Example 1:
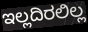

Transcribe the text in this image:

ಇಲ್ಲದಿರಲಿಲ್ಲ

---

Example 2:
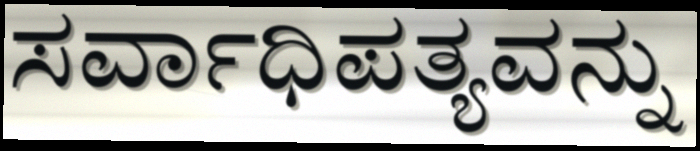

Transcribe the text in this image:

ಸರ್ವಾಧಿಪತ್ಯವನ್ನು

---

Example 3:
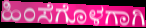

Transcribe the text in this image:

ಹಿಂಸೆಗೊಳಗಾಗಿ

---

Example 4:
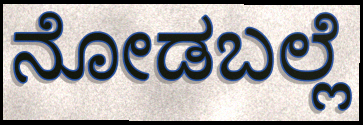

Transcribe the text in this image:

ನೋಡಬಲ್ಲೆ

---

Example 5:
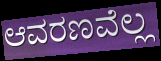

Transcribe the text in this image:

ಆವರಣವೆಲ್ಲ